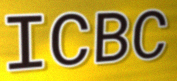
ICBC